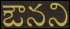
ఔనని